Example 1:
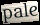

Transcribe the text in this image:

pale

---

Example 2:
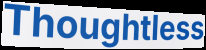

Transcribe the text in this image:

Thoughtless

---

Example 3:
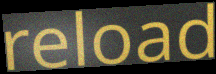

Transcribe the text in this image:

reload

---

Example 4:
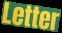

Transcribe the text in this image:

Letter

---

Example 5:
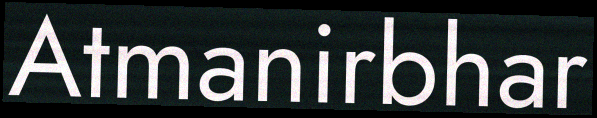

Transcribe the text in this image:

Atmanirbhar